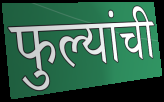
फुल्यांची